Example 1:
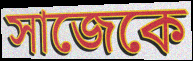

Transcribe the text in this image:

সাজেকে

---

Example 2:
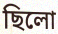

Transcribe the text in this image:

ছিলো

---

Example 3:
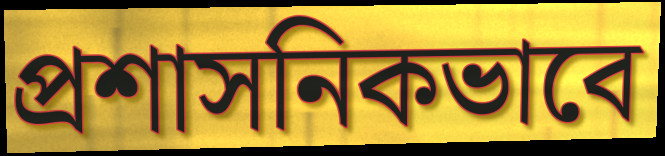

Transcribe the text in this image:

প্রশাসনিকভাবে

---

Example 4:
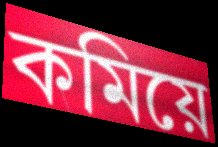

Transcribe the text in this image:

কমিয়ে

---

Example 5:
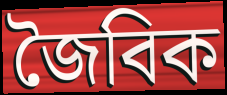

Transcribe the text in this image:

জৈবিক